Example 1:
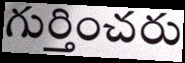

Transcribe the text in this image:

గుర్తించరు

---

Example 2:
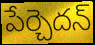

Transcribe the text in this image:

పేర్చెదన్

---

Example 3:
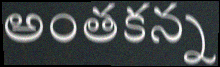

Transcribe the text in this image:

అంతకన్న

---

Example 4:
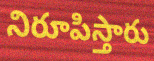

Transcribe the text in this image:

నిరూపిస్తారు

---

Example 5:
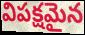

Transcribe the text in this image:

విపక్షమైన